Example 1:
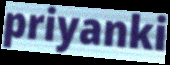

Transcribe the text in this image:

priyanki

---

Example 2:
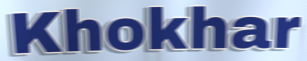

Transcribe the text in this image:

Khokhar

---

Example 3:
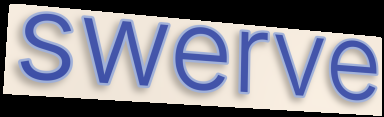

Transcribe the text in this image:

swerve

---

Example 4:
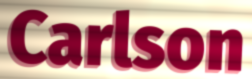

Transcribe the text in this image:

Carlson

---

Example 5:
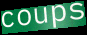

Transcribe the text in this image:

coups